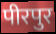
पीरपुर